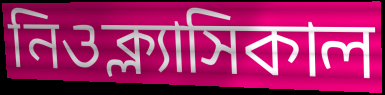
নিওক্ল্যাসিকাল